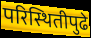
परिस्थितीपुढे